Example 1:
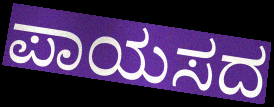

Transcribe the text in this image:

ಪಾಯಸದ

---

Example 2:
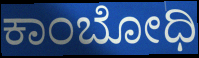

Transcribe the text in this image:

ಕಾಂಬೋಧಿ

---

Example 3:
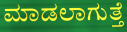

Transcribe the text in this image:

ಮಾಡಲಾಗುತ್ತೆ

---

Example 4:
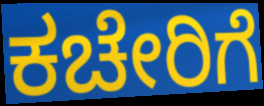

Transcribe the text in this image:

ಕಚೇರಿಗೆ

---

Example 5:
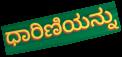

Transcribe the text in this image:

ಧಾರಿಣಿಯನ್ನು